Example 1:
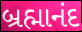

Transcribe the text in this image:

બ્રહ્માનંદ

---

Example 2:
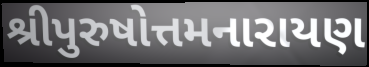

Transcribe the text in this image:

શ્રીપુરુષોત્તમનારાયણ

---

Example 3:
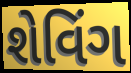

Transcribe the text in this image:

શેવિંગ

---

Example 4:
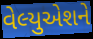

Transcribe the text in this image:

વેલ્યુએશને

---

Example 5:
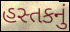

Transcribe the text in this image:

હસ્તકનું